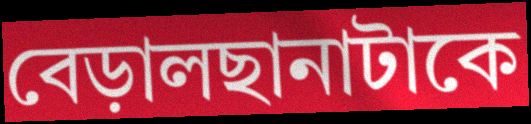
বেড়ালছানাটাকে